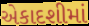
એકાદશીમાં